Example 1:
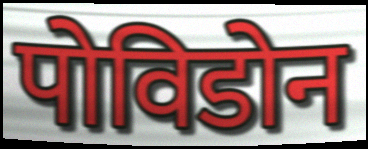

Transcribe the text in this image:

पोविडोन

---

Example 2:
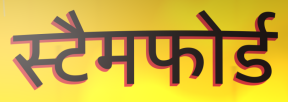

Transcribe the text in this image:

स्टैमफोर्ड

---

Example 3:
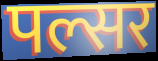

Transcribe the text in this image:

पल्सर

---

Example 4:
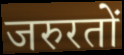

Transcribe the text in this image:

जरुरतों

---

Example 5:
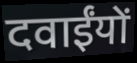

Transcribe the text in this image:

दवाईंयों